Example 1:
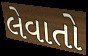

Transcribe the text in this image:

લેવાતો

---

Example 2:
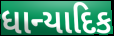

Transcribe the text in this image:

ધાન્યાદિક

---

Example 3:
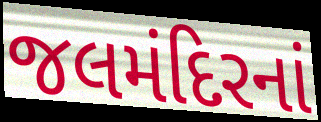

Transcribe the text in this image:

જલમંદિરનાં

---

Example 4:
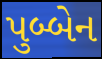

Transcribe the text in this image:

પુબ્બેન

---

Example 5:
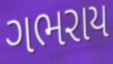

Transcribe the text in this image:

ગભરાય